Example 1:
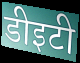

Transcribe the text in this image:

डीइटी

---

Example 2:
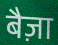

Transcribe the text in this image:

बैज़ा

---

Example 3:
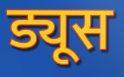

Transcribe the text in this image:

ड्यूस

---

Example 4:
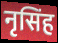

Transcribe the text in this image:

नृसिंह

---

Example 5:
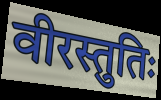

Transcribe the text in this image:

वीरस्तुतिः